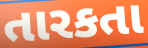
તારકતા